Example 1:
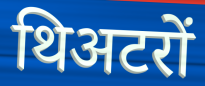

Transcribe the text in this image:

थिअटरों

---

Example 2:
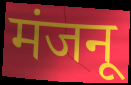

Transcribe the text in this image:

मंजनू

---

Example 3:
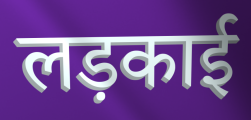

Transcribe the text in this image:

लड़काई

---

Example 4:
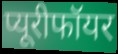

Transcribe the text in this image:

प्यूरीफॉयर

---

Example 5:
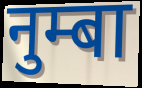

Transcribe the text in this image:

नुम्बा